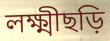
লক্ষ্মীছড়ি